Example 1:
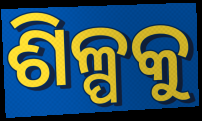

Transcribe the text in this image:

ଶିଳ୍ପକୁ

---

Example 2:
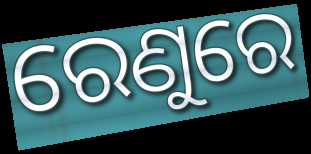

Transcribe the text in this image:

ରେଣୁରେ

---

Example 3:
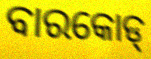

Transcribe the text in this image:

ବାରକୋଡ୍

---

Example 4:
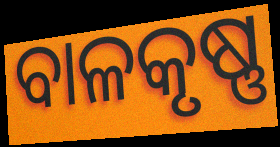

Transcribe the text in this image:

ବାଳକୃଷ୍ଣ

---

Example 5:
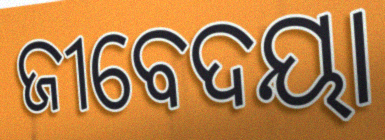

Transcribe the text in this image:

ଜୀବେଦୟା